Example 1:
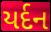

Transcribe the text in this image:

યર્દન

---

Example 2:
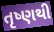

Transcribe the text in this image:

તૃષ્ણથી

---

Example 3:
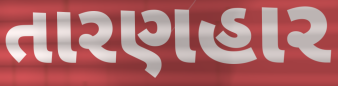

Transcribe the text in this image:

તારણહાર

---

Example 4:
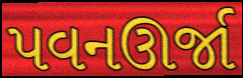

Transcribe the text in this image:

પવનઊર્જા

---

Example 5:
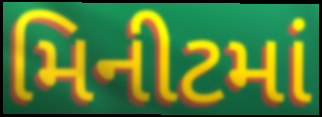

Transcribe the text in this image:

મિનીટમાં